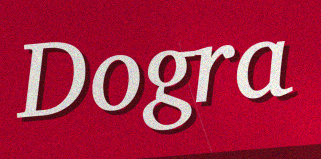
Dogra